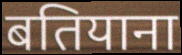
बतियाना